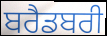
ਬਰੈਡਬਰੀ